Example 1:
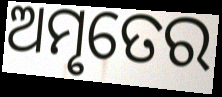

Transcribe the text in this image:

ଅମୃତେର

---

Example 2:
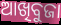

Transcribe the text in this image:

ଆଖିବୁଜା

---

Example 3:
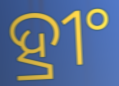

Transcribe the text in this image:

ହ୍ରୀଂ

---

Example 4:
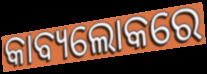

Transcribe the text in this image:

କାବ୍ୟଲୋକରେ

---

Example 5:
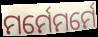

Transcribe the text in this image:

ମର୍ମେମର୍ମେ